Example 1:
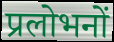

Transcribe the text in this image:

प्रलोभनों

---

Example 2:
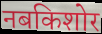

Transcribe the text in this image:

नबकिशोर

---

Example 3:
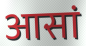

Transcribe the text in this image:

आसां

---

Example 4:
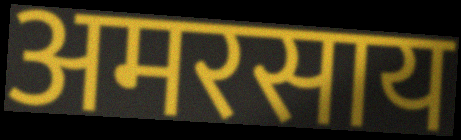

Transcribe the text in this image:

अमरसाय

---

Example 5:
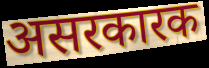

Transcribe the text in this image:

असरकारक